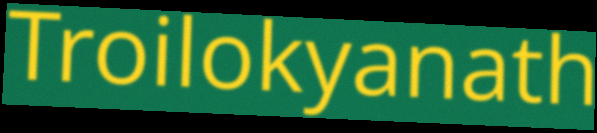
Troilokyanath